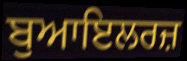
ਬੁਆਇਲਰਜ਼